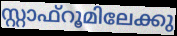
സ്റ്റാഫ്റൂമിലേക്കു